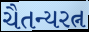
ચૈતન્યરત્ન